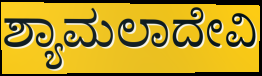
ಶ್ಯಾಮಲಾದೇವಿ